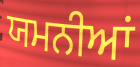
ਯਮਨੀਆਂ